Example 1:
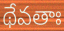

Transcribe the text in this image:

థేవతాః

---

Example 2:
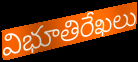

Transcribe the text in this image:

విభూతిరేఖలు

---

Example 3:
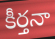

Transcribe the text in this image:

కీర్తనా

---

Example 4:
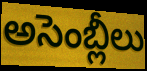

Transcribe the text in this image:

అసెంబ్లీలు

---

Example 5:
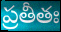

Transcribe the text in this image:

ప్రతీతః